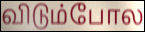
விடும்போல